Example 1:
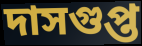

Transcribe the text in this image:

দাসগুপ্ত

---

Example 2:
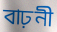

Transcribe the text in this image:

বাঢ়নী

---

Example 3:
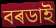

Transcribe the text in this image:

বৰডাই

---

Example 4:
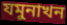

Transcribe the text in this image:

যমুনাখন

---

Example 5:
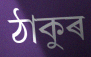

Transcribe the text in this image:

ঠাকুৰ